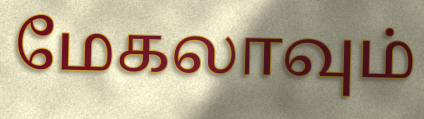
மேகலாவும்